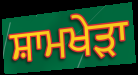
ਸ਼ਾਮਖੇੜਾ